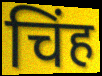
चिंह